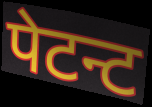
पेटन्ट